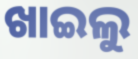
ଖାଇଲୁ